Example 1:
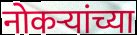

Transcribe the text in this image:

नोकऱ्यांच्या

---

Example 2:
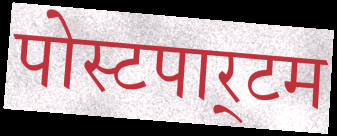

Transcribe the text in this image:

पोस्टपार्टम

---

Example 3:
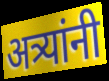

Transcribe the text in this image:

अत्र्यांनी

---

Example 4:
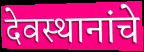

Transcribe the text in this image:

देवस्थानांचे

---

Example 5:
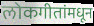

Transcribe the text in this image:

लोकगीतांमधून